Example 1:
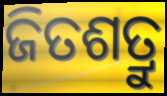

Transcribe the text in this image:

ଜିତଶତ୍ରୁ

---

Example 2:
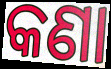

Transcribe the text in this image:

କଣା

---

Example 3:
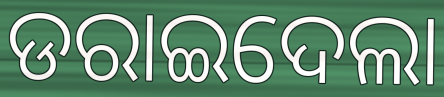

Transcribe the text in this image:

ଡରାଇଦେଲା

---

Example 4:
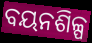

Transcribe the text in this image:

ବୟନଶିଳ୍ପ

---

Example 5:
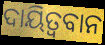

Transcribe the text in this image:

ଦାୟିତ୍ବବାନ